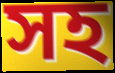
সহ